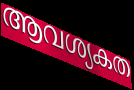
ആവശ്യകത